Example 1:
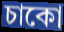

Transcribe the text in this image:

চাকো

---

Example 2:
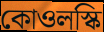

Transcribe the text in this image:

কোওলস্কি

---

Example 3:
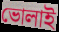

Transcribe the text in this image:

ভোলাই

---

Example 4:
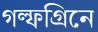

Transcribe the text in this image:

গল্ফগ্রিনে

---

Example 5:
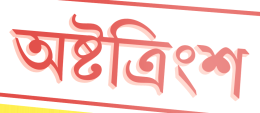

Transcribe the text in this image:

অষ্টত্রিংশ